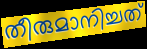
തീരുമാനിച്ചത്